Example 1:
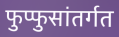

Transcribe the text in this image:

फुप्फुसांतर्गत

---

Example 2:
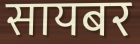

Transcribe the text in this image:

सायबर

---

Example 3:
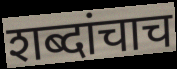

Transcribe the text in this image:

शब्दांचाच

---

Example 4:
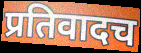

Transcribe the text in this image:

प्रतिवादच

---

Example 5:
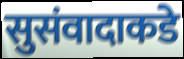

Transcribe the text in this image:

सुसंवादाकडे